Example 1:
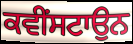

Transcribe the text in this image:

ਕਵੀਂਸਟਾਉਨ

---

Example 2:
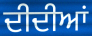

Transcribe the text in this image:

ਦੀਦੀਆਂ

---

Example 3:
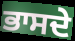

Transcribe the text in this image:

ਭਾਸਦੇ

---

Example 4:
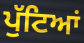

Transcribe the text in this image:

ਪੁੱਟਿਆਂ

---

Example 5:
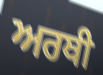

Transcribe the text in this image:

ਅਰਥੀ